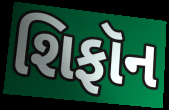
શિફૉન